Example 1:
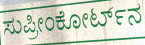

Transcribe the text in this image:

ಸುಪ್ರೀಂಕೋರ್ಟ್‌ನ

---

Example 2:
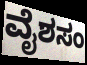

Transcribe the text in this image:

ವೈಶಸಂ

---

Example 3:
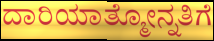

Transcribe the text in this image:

ದಾರಿಯಾತ್ಮೋನ್ನತಿಗೆ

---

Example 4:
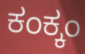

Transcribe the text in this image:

ಕಂಕ್ಕಂ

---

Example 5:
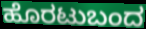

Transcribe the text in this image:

ಹೊರಟುಬಂದ